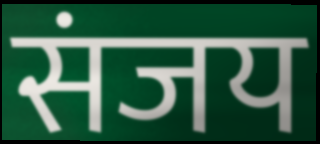
संजय